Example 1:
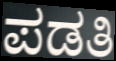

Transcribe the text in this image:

ಪಡತಿ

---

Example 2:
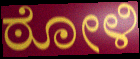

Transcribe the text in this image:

ಠೋಳಿ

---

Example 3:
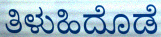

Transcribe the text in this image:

ತಿಳುಹಿದೊಡೆ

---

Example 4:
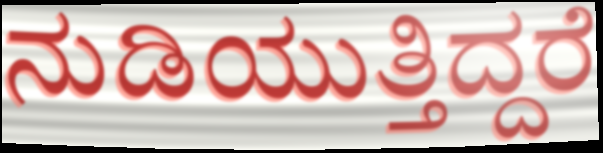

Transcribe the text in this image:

ನುಡಿಯುತ್ತಿದ್ದರೆ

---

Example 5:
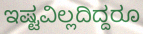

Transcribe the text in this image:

ಇಷ್ಟವಿಲ್ಲದಿದ್ದರೂ